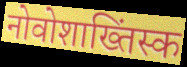
नोवोशाख्तिंस्क